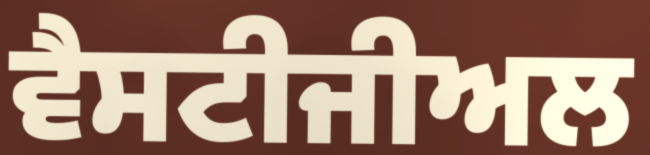
ਵੈਸਟੀਜੀਅਲ